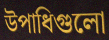
উপাধিগুলো